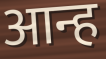
आन्ह